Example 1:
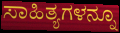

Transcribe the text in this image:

ಸಾಹಿತ್ಯಗಳನ್ನೂ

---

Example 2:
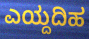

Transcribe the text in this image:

ಎಯ್ದದಿಹ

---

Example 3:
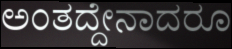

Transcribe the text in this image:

ಅಂತದ್ದೇನಾದರೂ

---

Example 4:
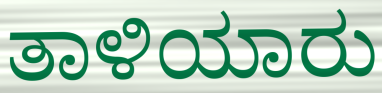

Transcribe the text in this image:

ತಾಳಿಯಾರು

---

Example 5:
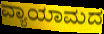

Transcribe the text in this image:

ವ್ಯಾಯಾಮದ